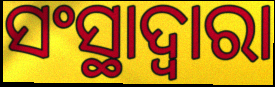
ସଂସ୍ଥାଦ୍ୱାରା